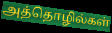
அத்தொழில்கள்